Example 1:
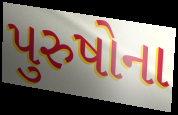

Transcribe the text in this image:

પુરુષોના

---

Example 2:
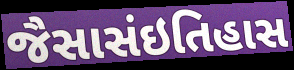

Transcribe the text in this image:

જૈસાસંઇતિહાસ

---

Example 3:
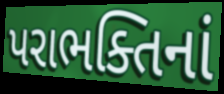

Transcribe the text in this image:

પરાભક્તિનાં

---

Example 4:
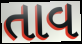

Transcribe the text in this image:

તાવ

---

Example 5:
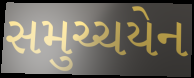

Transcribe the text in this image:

સમુચ્ચયેન